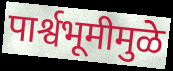
पार्श्वभूमीमुळे